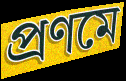
প্রণমে